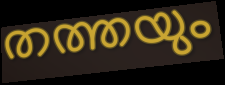
തത്തയും